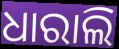
ଧାରାଲି